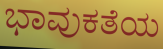
ಭಾವುಕತೆಯ